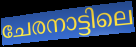
ചേരനാട്ടിലെ